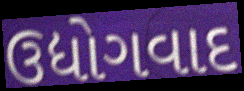
ઉદ્યોગવાદ